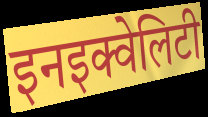
इनइक्वेलिटी